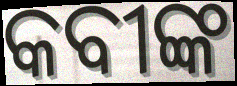
କବୀଙ୍କ